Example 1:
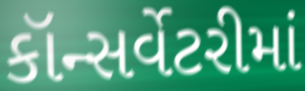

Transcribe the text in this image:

કૉન્સર્વેટરીમાં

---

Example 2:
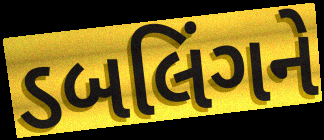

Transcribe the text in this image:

ડબલિંગને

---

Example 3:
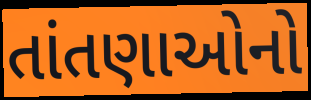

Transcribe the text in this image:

તાંતણાઓનો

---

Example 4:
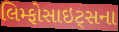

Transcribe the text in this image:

લિમ્ફોસાઇટ્સના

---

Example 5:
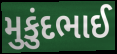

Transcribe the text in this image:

મુકુંદભાઈ